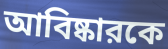
আবিষ্কারকে